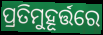
ପ୍ରତିମୁହୂର୍ତ୍ତରେ